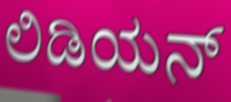
ಲಿಡಿಯನ್